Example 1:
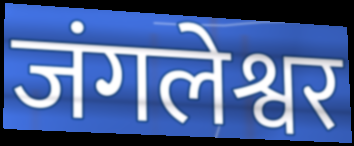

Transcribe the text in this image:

जंगलेश्वर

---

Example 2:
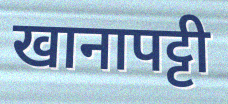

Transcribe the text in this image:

खानापट्टी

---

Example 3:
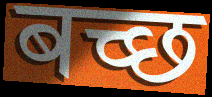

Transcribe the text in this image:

बच्छ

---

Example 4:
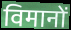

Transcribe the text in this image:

विमानों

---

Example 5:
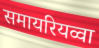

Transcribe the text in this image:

समायरियव्वा